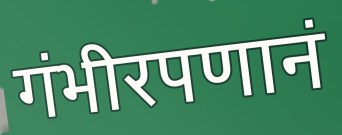
गंभीरपणानं